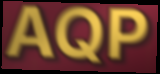
AQP